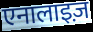
एनालाइज़